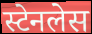
स्टेनलेस